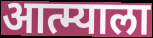
आत्म्याला